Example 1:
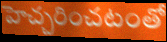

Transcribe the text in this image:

హెచ్చరించటంతో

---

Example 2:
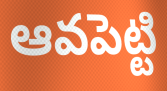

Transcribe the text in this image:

ఆవపెట్టి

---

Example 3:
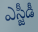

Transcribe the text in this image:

ఎస్జీడీ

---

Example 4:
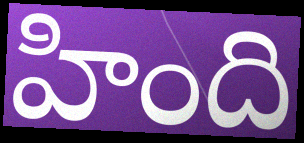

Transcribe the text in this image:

హింది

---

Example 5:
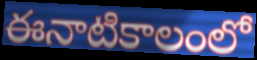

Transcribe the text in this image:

ఈనాటికాలంలో